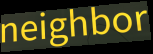
neighbor